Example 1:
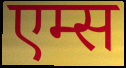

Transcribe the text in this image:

एम्स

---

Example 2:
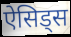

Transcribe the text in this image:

ऐसिड्स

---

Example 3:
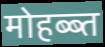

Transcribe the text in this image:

मोहब्ब्त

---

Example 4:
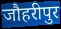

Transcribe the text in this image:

जौहरीपुर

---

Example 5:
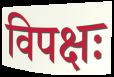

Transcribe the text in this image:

विपक्षः